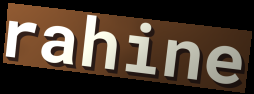
rahine